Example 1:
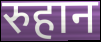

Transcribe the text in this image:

रुहान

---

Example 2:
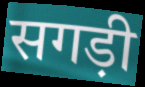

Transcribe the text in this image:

सगड़ी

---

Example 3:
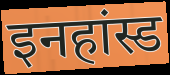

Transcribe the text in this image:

इनहांस्ड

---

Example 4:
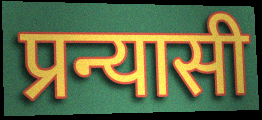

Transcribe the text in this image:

प्रन्यासी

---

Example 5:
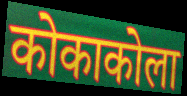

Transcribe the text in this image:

कोकाकोला